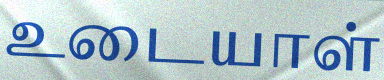
உடையாள்